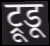
ट्रूडू